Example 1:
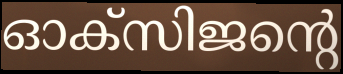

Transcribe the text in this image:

ഓക്സിജന്റെ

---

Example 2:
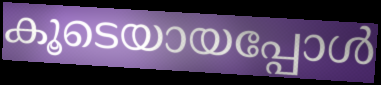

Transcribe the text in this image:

കൂടെയായപ്പോൾ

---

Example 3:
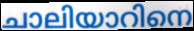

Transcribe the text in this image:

ചാലിയാറിനെ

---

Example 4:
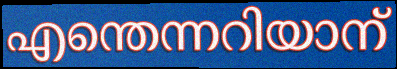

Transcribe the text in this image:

എന്തെന്നറിയാന്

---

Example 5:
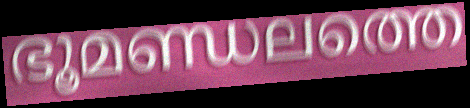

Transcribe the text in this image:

ഭൂമണ്ഡലത്തെ